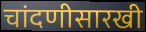
चांदणीसारखी